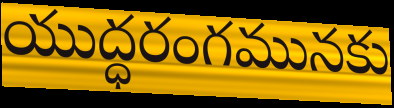
యుద్ధరంగమునకు